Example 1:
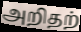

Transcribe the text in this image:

அறிதற்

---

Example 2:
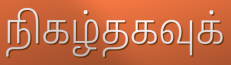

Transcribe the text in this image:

நிகழ்தகவுக்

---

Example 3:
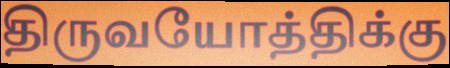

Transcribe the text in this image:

திருவயோத்திக்கு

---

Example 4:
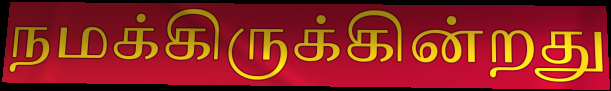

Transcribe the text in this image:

நமக்கிருக்கின்றது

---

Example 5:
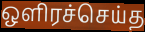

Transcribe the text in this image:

ஒளிரச்செய்த